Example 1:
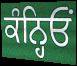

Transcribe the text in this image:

ਕੰਨ੍ਹਿਓਂ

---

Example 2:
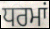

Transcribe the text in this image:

ਧਰਮਾਂ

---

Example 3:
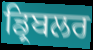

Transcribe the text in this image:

ਡ੍ਰਿਬਲਰ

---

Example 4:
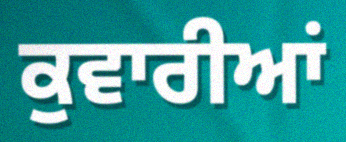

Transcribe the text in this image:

ਕੁਵਾਰੀਆਂ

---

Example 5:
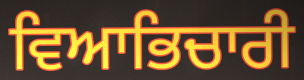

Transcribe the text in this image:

ਵਿਆਭਿਚਾਰੀ